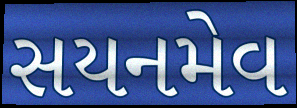
સયનમેવ